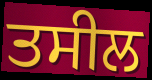
ਤਸੀਲ